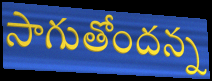
సాగుతోందన్న